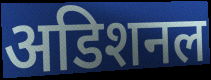
अडिशनल